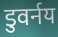
डुवर्नय